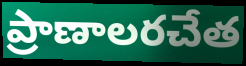
ప్రాణాలరచేత